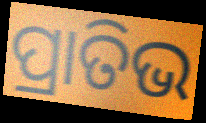
ପ୍ରାତିଭ